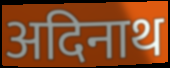
अदिनाथ